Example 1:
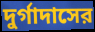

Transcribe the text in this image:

দুর্গাদাসের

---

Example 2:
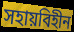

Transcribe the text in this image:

সহায়বিহীন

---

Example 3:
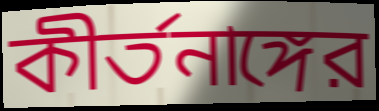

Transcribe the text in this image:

কীর্তনাঙ্গের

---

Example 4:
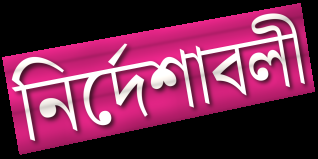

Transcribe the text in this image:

নির্দেশাবলী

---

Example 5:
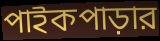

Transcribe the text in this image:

পাইকপাড়ার